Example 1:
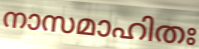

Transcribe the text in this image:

നാസമാഹിതഃ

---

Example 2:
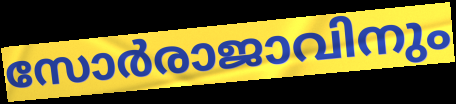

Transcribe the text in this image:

സോർരാജാവിനും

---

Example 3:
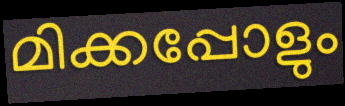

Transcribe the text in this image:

മിക്കപ്പോളും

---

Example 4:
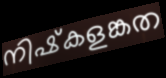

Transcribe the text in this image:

നിഷ്‌കളങ്കത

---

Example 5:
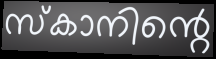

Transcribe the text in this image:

സ്കാനിന്റെ